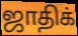
ஜாதிக்